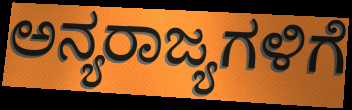
ಅನ್ಯರಾಜ್ಯಗಳಿಗೆ